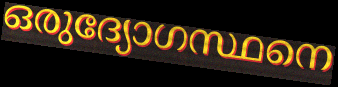
ഒരുദ്യോഗസ്ഥനെ